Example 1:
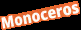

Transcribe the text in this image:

Monoceros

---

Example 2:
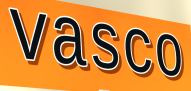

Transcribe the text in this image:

vasco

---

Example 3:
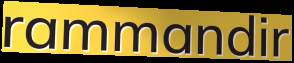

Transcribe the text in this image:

rammandir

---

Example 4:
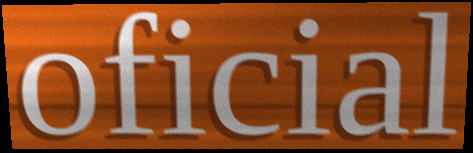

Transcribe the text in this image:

oficial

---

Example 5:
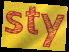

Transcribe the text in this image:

sty